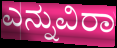
ಎನ್ನುವಿರಾ